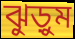
ঝুড়ুম